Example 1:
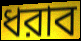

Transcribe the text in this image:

ধরাব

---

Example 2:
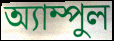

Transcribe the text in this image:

অ্যাম্পুল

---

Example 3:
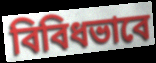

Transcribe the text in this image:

বিবিধভাবে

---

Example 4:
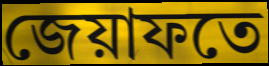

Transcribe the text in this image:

জেয়াফতে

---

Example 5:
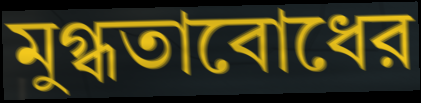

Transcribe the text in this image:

মুগ্ধতাবোধের